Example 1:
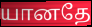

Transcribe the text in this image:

யானதே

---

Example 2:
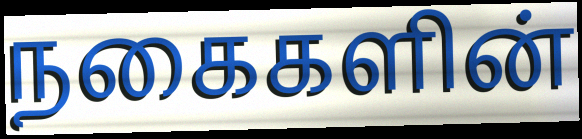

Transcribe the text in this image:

நகைகளின்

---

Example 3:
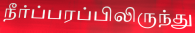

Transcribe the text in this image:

நீர்ப்பரப்பிலிருந்து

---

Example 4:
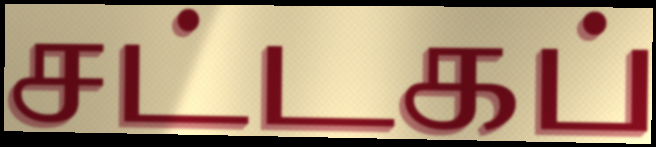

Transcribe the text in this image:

சட்டகப்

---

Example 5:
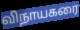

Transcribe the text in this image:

விநாயகரை